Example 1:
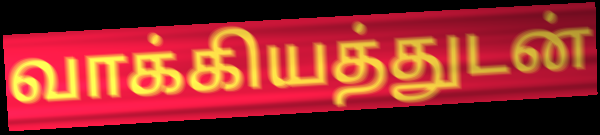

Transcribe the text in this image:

வாக்கியத்துடன்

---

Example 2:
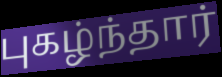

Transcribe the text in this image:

புகழ்ந்தார்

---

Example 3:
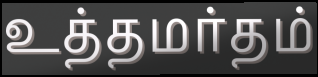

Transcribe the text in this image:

உத்தமர்தம்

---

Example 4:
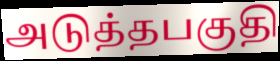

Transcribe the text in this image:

அடுத்தபகுதி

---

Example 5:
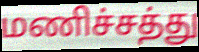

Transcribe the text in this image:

மணிச்சத்து